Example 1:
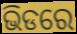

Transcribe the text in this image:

ଭିଡରେ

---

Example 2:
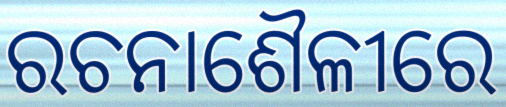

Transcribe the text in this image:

ରଚନାଶୈଳୀରେ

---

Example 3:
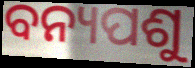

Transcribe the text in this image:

ବନ୍ୟପଶୁ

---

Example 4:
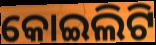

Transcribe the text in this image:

କୋଇଲିଟି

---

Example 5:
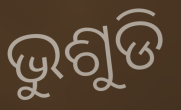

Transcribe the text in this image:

ଭୁଶୁଡି